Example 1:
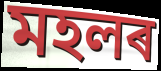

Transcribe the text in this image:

মহলৰ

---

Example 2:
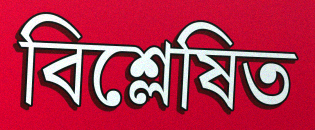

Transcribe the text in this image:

বিশ্লেষিত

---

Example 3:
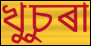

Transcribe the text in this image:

খুচুৰা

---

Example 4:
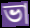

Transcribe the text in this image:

ভা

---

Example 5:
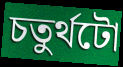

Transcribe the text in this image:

চতুৰ্থটো